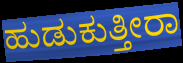
ಹುಡುಕುತ್ತೀರಾ